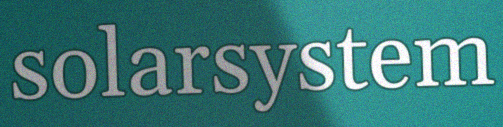
solarsystem